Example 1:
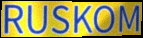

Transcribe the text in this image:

RUSKOM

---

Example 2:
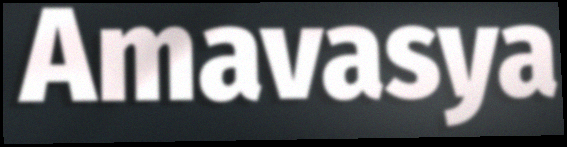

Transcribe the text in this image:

Amavasya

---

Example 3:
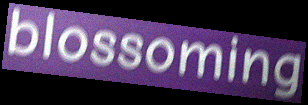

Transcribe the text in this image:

blossoming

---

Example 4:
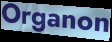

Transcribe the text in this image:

Organon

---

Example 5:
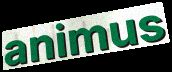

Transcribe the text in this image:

animus